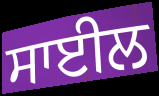
ਸਾਈਲ